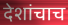
देशांचाच